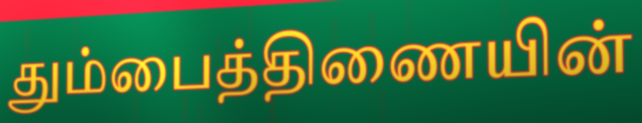
தும்பைத்திணையின்